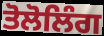
ਤੋਲੋਲਿੰਗ